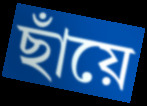
ছাঁয়ে